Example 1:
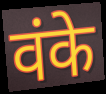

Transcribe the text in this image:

वंके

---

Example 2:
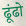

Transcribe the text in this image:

ढूंढो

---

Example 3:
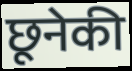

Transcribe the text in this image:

छूनेकी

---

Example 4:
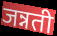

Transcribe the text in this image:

जन्नती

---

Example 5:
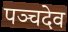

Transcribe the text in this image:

पञ्चदेव